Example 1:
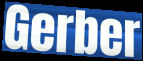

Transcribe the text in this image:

Gerber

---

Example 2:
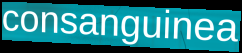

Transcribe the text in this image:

consanguinea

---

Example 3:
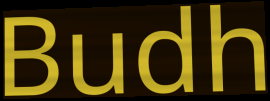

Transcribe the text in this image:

Budh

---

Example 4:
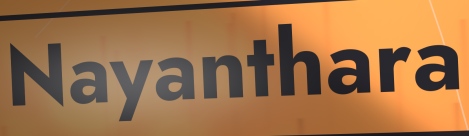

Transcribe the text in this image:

Nayanthara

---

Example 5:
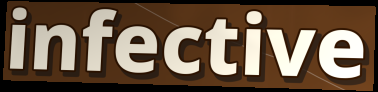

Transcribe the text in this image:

infective